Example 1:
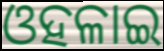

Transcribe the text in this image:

ଓହଳାଇ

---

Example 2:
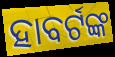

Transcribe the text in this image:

ହାବର୍ଟଙ୍କ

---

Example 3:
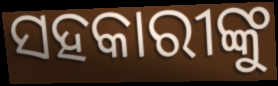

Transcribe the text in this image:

ସହକାରୀଙ୍କୁ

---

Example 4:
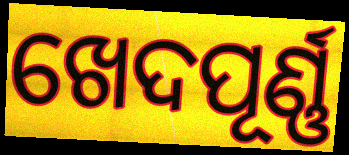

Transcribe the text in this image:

ଖେଦପୂର୍ଣ୍ଣ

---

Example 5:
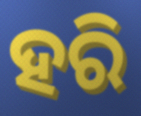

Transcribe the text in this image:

ହରି